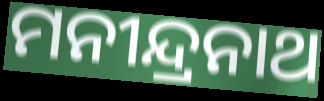
ମନୀନ୍ଦ୍ରନାଥ